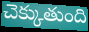
చెక్కుతుంది